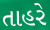
તાહરે